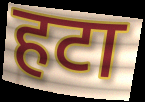
हटा